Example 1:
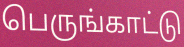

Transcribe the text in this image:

பெருங்காட்டு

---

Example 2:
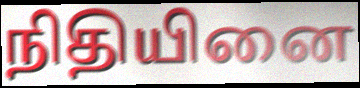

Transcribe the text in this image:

நிதியினை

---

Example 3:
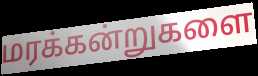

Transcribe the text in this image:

மரக்கன்றுகளை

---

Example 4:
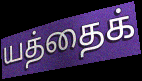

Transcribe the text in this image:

யத்தைக்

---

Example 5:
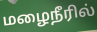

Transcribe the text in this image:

மழைநீரில்